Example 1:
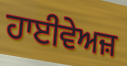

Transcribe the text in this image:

ਹਾਈਵੇਅਜ਼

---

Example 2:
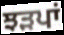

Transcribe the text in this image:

ਝੜਪਾਂ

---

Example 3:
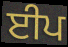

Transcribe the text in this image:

ਈਪ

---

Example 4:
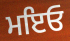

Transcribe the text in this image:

ਮਇਓ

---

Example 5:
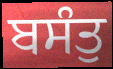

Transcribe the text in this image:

ਬਸੰਤੁ